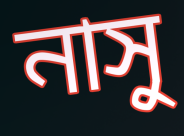
নাসু